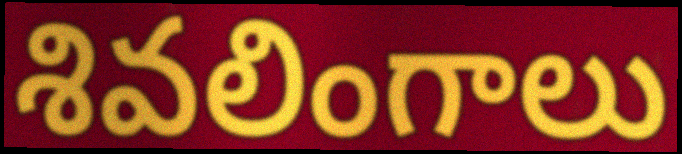
శివలింగాలు